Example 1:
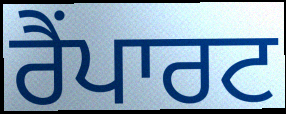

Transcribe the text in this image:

ਰੈਂਪਾਰਟ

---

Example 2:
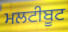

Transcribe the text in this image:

ਮਲਟੀਬੂਟ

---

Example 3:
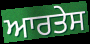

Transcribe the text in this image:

ਆਰਤੇਸ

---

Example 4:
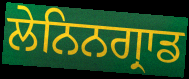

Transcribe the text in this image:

ਲੇਨਿਨਗ੍ਰਾਡ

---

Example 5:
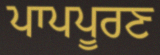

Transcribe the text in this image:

ਪਾਪਪੂਰਣ